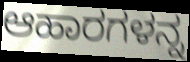
ಆಹಾರಗಳನ್ನ